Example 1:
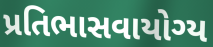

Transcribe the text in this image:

પ્રતિભાસવાયોગ્ય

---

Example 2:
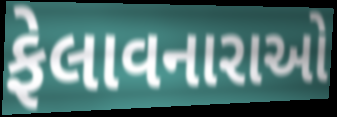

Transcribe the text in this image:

ફેલાવનારાઓ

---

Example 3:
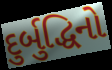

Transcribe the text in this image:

દુર્બુદ્ધિનો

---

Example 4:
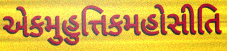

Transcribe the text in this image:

એકમુહુત્તિકમહોસીતિ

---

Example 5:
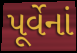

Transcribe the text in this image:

પૂર્વેનાં